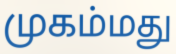
முகம்மது